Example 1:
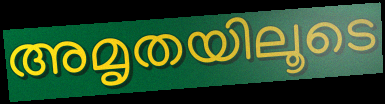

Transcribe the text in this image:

അമൃതയിലൂടെ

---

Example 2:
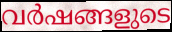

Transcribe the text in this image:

വർഷങ്ങളുടെ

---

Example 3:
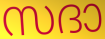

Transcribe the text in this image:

സദാ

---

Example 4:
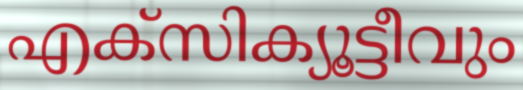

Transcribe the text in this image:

എക്സിക്യൂട്ടീവും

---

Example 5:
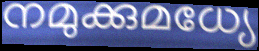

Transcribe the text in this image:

നമുക്കുമധ്യേ